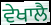
ਵੇਖਾਲੈ